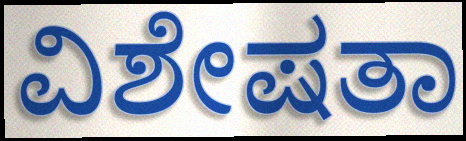
ವಿಶೇಷತಾ